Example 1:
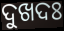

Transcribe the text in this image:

ଦୁଖଦଃ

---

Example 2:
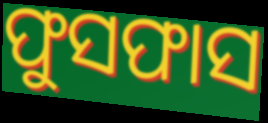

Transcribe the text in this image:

ଫୁସଫାସ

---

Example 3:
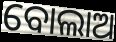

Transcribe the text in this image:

ବୋଲାଅ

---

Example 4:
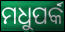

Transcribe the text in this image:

ମଧୁପର୍କ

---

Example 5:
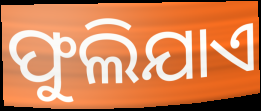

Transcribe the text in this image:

ଫୁଲିଯାଏ